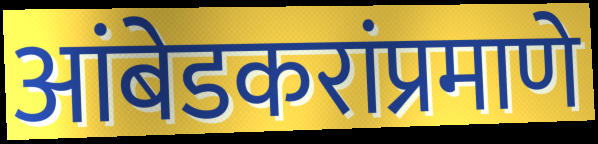
आंबेडकरांप्रमाणे